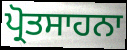
ਪ੍ਰੋਤਸਾਹਨਾ